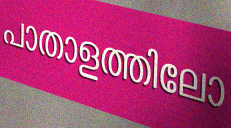
പാതാളത്തിലോ